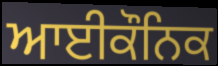
ਆਈਕੌਨਿਕ